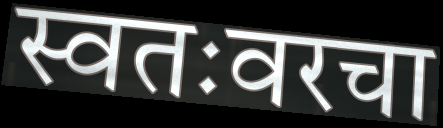
स्वतःवरचा